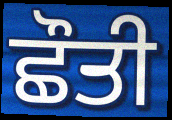
ਛੌਤੀ